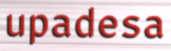
upadesa